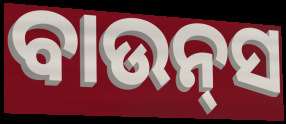
ବାଉନ୍‍ସ